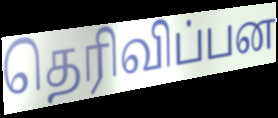
தெரிவிப்பன